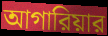
আগারিয়ার